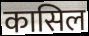
कासिल